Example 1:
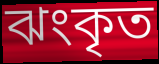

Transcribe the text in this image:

ঝংকৃত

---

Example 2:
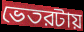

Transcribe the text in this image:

ভেতরটায়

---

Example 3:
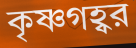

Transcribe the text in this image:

কৃষ্ণগহ্বর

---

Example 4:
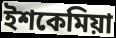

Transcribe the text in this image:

ইশকেমিয়া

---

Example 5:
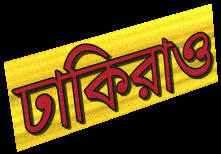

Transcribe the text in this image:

ঢাকিরাও